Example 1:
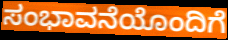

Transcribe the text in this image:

ಸಂಭಾವನೆಯೊಂದಿಗೆ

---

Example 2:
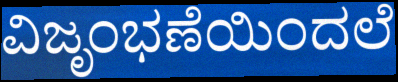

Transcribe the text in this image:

ವಿಜೃಂಭಣೆಯಿಂದಲೆ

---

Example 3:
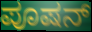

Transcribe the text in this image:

ಪೂಷನ್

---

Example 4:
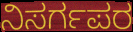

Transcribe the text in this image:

ನಿಸರ್ಗಪರ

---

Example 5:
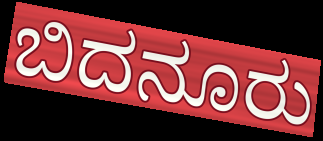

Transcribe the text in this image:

ಬಿದನೂರು